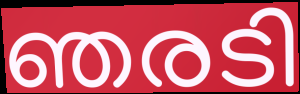
ഞരടി